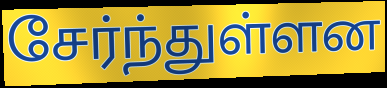
சேர்ந்துள்ளன